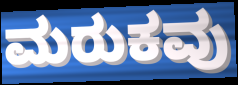
ಮರುಕವು